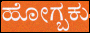
ಹೋಗ್ಬಕು